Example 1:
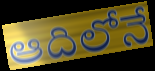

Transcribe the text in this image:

ఆదిలోనే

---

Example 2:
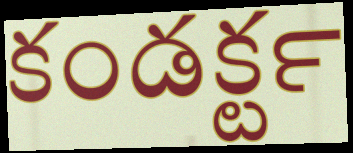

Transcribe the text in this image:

కండక్టర్‍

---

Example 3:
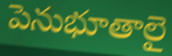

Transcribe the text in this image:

పెనుభూతాలై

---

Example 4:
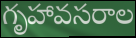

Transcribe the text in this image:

గృహావసరాల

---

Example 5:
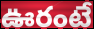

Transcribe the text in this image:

ఊరంటే